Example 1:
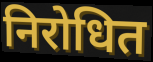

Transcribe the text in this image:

निरोधित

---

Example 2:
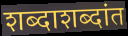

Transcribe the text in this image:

शब्दाशब्दांत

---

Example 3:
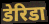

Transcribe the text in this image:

डेरिडा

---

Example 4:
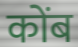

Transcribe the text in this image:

कोंब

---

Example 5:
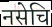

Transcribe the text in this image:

नसेचि